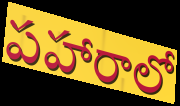
పహారాలో